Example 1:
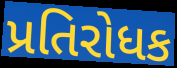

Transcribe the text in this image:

પ્રતિરોધક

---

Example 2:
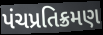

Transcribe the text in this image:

પંચપ્રતિક્રમણ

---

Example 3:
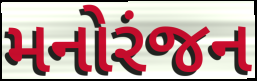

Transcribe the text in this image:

મનોરંજન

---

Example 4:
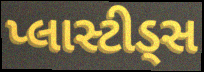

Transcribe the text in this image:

પ્લાસ્ટીડ્સ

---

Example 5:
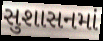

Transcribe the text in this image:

સુશાસનમાં